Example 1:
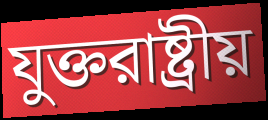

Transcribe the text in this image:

যুক্তরাষ্ট্রীয়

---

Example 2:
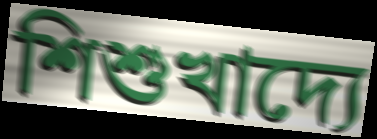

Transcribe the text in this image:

শিশুখাদ্যে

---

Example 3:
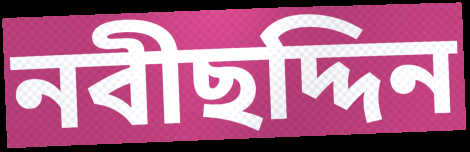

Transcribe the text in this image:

নবীছদ্দিন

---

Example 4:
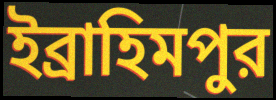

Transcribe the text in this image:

ইব্রাহিমপুর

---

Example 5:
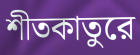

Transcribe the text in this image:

শীতকাতুরে